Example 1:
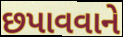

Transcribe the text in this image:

છપાવવાને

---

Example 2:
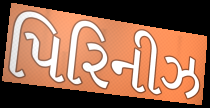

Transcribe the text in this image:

પિરિનીઝ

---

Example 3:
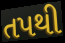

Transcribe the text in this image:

તપથી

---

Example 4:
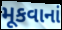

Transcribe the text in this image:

મૂકવાનાં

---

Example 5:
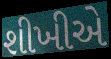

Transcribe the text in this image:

શીખીએ